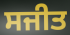
ਸਜੀਤ